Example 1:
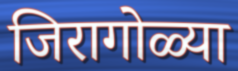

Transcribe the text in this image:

जिरागोळ्या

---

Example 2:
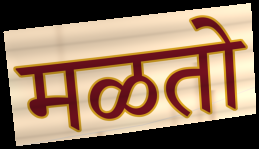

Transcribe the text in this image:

मळतो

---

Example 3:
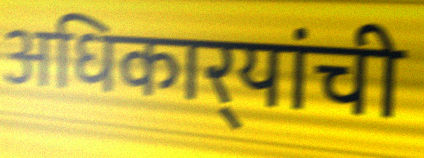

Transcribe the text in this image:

अधिकार्‍यांची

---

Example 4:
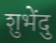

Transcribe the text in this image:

शुभेंदु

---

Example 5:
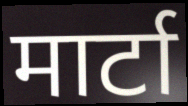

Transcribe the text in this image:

मार्टा